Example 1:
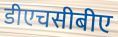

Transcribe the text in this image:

डीएचसीबीए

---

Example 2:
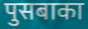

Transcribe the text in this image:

पुसबाका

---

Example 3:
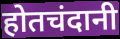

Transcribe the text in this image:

होतचंदानी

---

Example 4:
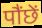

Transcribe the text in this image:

पौंछें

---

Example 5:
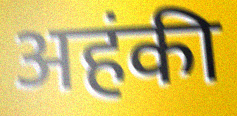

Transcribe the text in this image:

अहंकी